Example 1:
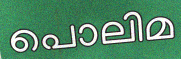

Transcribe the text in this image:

പൊലിമ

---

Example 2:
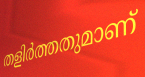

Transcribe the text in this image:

തളിർത്തതുമാണ്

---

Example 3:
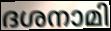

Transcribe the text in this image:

ദശനാമി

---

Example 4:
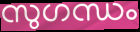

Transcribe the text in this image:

സുഗന്ധം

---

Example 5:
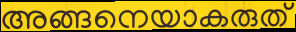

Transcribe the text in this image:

അങ്ങനെയാകരുത്